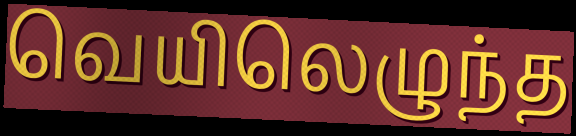
வெயிலெழுந்த